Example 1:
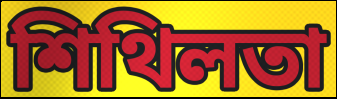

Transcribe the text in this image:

শিথিলতা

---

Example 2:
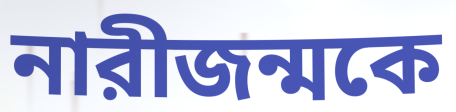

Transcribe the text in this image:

নারীজন্মকে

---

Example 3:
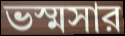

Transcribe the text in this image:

ভস্মসার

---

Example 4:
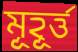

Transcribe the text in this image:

মূহূর্ত্ত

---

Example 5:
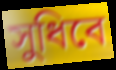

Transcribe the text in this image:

সুধিবে